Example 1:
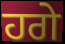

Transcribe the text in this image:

ਹਗੇ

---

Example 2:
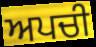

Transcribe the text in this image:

ਅਪਚੀ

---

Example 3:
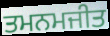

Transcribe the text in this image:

ਤਮਨਮਜੀਤ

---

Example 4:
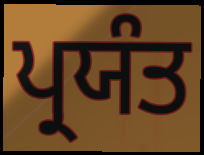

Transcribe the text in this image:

ਪ੍ਰਯੰਤ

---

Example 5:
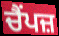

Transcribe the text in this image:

ਚੈਂਪਜ਼